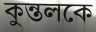
কুন্তলকে